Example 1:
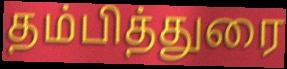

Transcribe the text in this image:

தம்பித்துரை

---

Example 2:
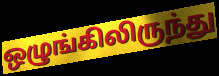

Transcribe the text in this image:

ஒழுங்கிலிருந்து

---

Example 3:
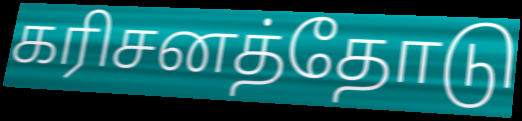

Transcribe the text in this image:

கரிசனத்தோடு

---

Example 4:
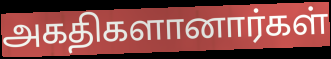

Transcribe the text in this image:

அகதிகளானார்கள்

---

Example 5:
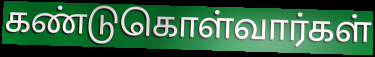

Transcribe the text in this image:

கண்டுகொள்வார்கள்